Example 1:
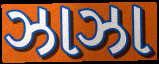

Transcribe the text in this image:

ઝાઝા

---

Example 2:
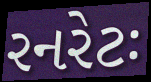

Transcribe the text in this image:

રનરેટઃ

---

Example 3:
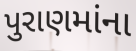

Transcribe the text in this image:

પુરાણમાંના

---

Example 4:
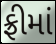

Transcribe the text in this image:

ફ્રીમાં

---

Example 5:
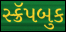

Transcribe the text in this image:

સ્ક્રૅપબુક